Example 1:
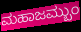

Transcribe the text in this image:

ಮಹಾಜಮ್ಬುಂ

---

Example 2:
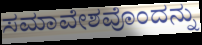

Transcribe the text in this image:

ಸಮಾವೇಶವೊಂದನ್ನು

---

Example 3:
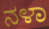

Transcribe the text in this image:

ನಳಾ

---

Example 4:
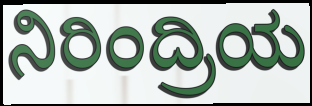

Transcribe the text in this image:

ನಿರಿಂದ್ರಿಯ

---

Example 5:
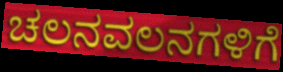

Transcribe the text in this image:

ಚಲನವಲನಗಳಿಗೆ